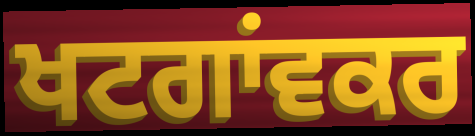
ਖਟਗਾਂਵਕਰ